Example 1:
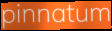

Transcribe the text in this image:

pinnatum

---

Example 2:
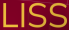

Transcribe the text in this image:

LISS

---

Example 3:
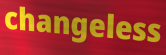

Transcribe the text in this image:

changeless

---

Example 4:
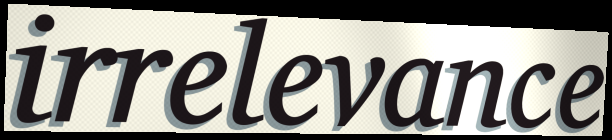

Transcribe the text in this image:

irrelevance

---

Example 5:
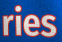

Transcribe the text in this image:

ries